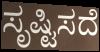
ಸೃಷ್ಟಿಸದೆ